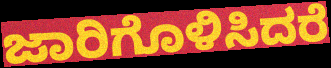
ಜಾರಿಗೊಳಿಸಿದರೆ